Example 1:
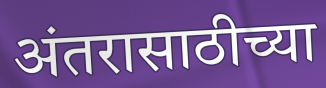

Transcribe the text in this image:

अंतरासाठीच्या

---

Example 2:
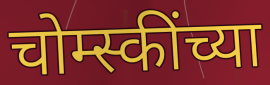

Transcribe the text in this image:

चोम्स्कींच्या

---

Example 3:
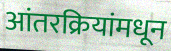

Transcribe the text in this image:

आंतरक्रियांमधून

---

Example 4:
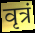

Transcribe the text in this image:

वृत्रं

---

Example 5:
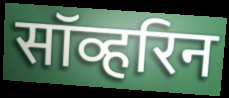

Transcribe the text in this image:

सॉव्हरिन